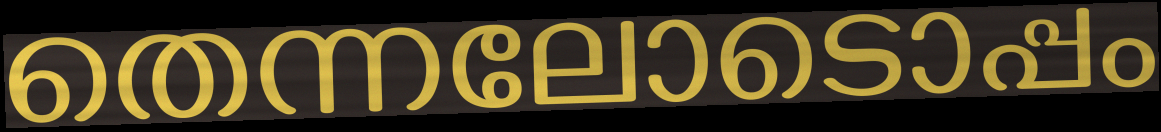
തെന്നലോടൊപ്പം